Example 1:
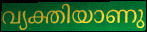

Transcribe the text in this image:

വ്യക്തിയാണു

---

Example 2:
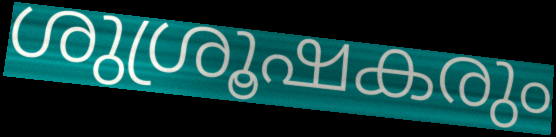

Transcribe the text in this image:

ശുശ്രൂഷകരും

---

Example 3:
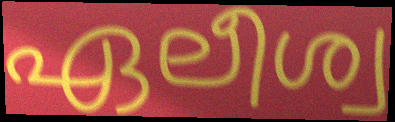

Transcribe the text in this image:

ഏലീശ്വ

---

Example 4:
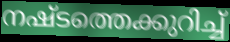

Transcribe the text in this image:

നഷ്ടത്തെക്കുറിച്ച്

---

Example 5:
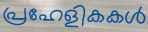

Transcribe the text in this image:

പ്രഹേളികകൾ